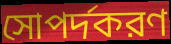
সোপর্দকরণ